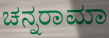
ಚನ್ನರಾಮಾ